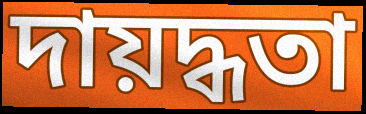
দায়দ্ধতা